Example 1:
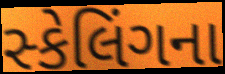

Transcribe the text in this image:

સ્કેલિંગના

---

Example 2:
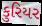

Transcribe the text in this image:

કુરિયર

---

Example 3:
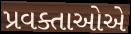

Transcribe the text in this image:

પ્રવક્તાઓએ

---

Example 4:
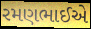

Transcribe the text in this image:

રમણભાઈએ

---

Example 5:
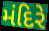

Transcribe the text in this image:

મંદિરે